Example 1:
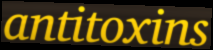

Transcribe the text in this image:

antitoxins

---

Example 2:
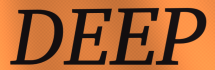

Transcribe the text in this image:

DEEP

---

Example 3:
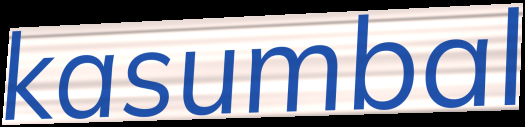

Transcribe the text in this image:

kasumbal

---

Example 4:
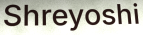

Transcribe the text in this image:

Shreyoshi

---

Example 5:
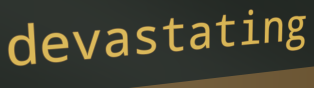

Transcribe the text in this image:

devastating